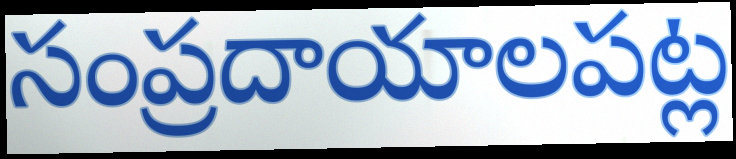
సంప్రదాయాలపట్ల